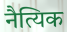
नैत्यिक